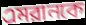
এমরানকে